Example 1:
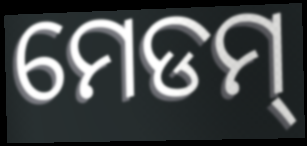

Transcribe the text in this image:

ମେଡମ୍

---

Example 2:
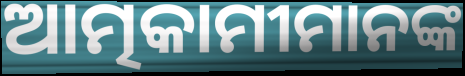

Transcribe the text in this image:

ଆତ୍ମକାମୀମାନଙ୍କ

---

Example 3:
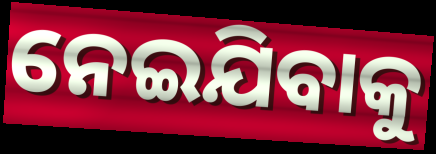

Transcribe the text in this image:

ନେଇଯିବାକୁ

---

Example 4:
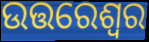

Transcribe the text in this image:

ଉତ୍ତରେଶ୍ୱର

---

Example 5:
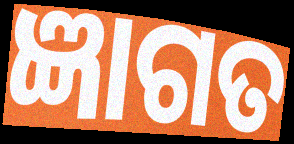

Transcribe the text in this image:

ଜ୍ଞାଗତ